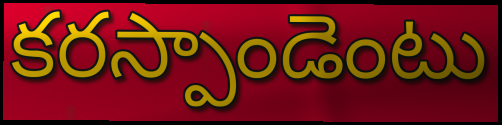
కరస్పాండెంటు